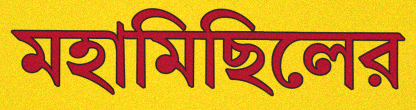
মহামিছিলের